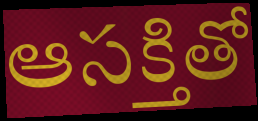
ఆసక్తితో